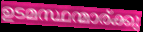
ഉടമസ്ഥന്മാര്ക്കു